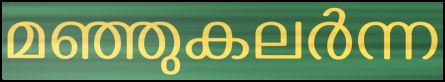
മഞ്ഞുകലർന്ന